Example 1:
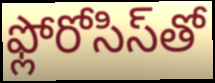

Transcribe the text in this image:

ఫ్లోరోసిస్‌తో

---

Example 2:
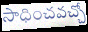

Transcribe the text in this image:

సాధించవచ్చో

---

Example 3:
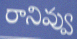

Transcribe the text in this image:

రానివ్వు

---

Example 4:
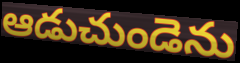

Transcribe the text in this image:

ఆడుచుండెను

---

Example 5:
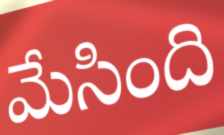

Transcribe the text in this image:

మేసింది